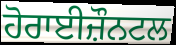
ਹੋਰਾਈਜ਼ੌਨਟਲ